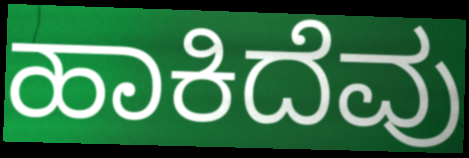
ಹಾಕಿದೆವು